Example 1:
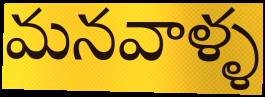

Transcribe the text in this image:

మనవాళ్ళ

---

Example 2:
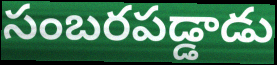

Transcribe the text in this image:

సంబరపడ్డాడు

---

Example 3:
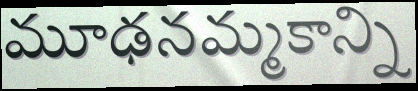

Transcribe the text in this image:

మూఢనమ్మకాన్ని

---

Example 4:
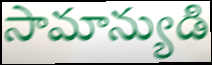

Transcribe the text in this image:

సామాన్యుడి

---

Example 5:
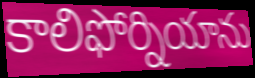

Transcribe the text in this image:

కాలిఫోర్నియాను